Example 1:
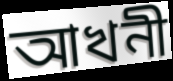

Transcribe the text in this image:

আখনী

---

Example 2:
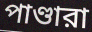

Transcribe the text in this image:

পাণ্ডারা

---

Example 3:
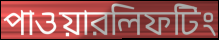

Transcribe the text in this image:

পাওয়ারলিফটিং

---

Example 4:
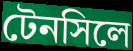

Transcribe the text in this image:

টেনসিলে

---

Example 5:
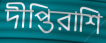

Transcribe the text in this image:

দীপ্তিরাশি